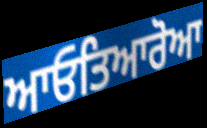
ਆਓਤਿਆਰੋਆ